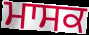
ਮਾਸਕ